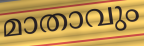
മാതാവും